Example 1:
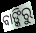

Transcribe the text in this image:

ବାଙ୍କିରୁ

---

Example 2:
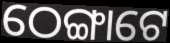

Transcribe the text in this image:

ଠେଙ୍ଗାଟେ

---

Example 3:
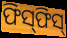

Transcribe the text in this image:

ଫିସ୍‍ଫିସ୍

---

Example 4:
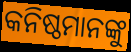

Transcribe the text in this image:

କନିଷ୍ଠମାନଙ୍କୁ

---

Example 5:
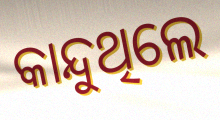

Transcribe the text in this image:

କାନ୍ଦୁଥିଲେ